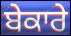
ਬੇਕਾਰੇ